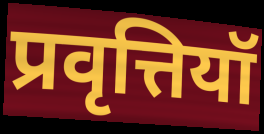
प्रवृत्तियॉ